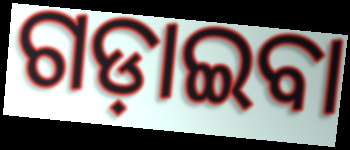
ଗଡ଼ାଇବା